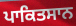
ਪਾਕਿਤਸਾਨ